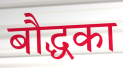
बौद्धका